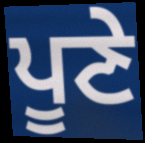
ਪੂਣੇ